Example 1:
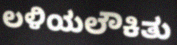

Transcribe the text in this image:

ಲಳಿಯಲೌಕಿತು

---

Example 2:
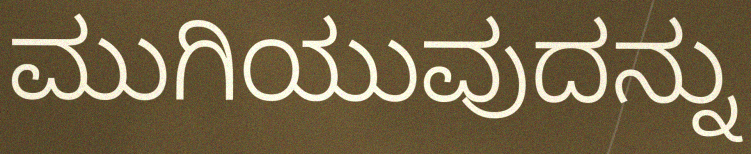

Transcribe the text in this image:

ಮುಗಿಯುವುದನ್ನು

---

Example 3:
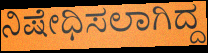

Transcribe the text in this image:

ನಿಷೇಧಿಸಲಾಗಿದ್ದ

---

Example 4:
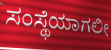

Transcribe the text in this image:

ಸಂಸ್ಥೆಯಾಗಲೀ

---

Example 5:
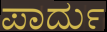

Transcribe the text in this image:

ಪಾರ್ದು